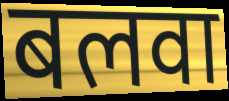
बलवा